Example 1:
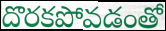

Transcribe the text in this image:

దొరకపోవడంతో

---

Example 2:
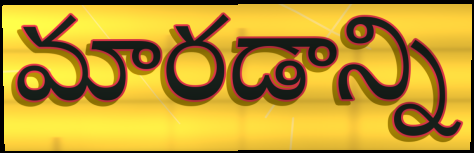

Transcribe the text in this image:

మారడాన్ని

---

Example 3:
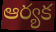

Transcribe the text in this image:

ఆర్యక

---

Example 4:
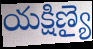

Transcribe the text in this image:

యక్షిణ్యై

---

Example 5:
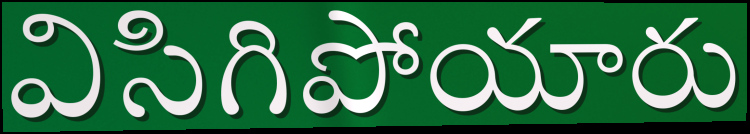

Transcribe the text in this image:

విసిగిపోయారు